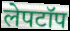
लेपटॉप